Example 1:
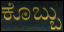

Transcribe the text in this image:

ಕೊಬ್ಬು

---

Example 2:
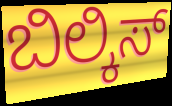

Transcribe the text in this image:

ಬಿಲ್ಕಿಸ್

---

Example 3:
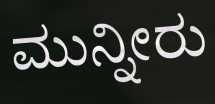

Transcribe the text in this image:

ಮುನ್ನೀರು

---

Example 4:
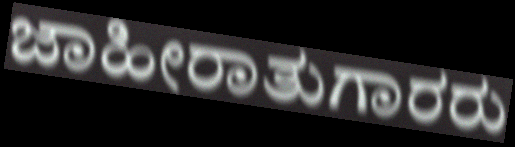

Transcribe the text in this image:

ಜಾಹೀರಾತುಗಾರರು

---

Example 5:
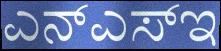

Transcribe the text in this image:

ಎನ್ಎಸ್ಇ